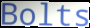
Bolts